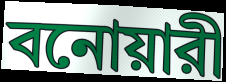
বনোয়ারী